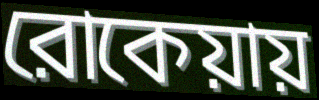
রোকেয়ায়